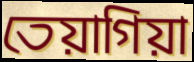
তেয়াগিয়া